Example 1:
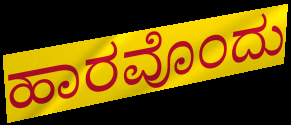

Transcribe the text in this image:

ಹಾರವೊಂದು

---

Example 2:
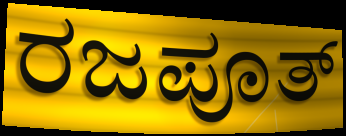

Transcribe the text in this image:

ರಜಪೂತ್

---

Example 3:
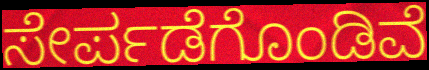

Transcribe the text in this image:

ಸೇರ್ಪಡೆಗೊಂಡಿವೆ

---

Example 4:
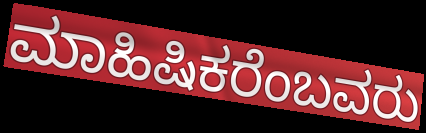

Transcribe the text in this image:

ಮಾಹಿಷಿಕರೆಂಬವರು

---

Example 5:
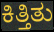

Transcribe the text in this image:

ಕಿತ್ತಿತು